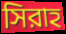
সিরাহ